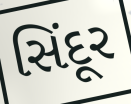
સિંદૂર